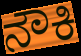
ನೌಕಿ